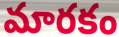
మారకం